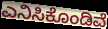
ಎನಿಸಿಕೊಂಡಿವೆ